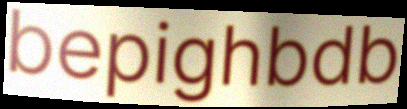
bepighbdb